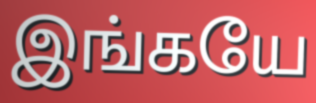
இங்கயே